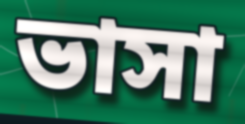
ভাসা